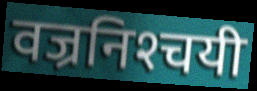
वज्रनिश्चयी